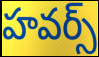
హవర్స్